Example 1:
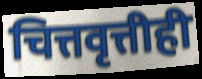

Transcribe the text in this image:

चित्तवृत्तीही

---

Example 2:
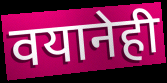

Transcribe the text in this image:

वयानेही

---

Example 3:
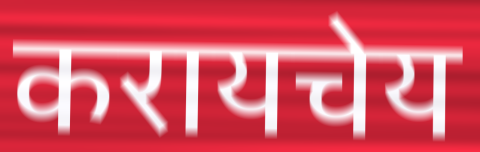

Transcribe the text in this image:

करायचेय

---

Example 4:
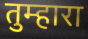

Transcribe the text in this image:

तुम्हारा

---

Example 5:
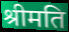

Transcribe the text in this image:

श्रीमति